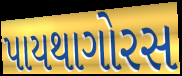
પાયથાગોરસ